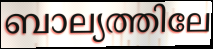
ബാല്യത്തിലേ